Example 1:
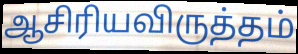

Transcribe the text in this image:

ஆசிரியவிருத்தம்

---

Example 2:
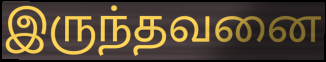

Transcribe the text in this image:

இருந்தவனை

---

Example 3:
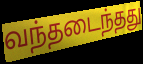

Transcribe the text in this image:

வந்தடைந்தது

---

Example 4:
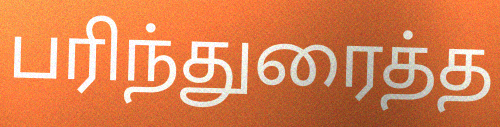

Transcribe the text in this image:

பரிந்துரைத்த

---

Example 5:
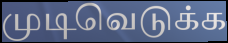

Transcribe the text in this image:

முடிவெடுக்க